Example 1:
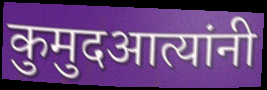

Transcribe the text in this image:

कुमुदआत्यांनी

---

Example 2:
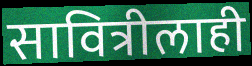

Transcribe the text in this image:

सावित्रीलाही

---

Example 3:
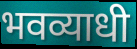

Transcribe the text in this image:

भवव्याधी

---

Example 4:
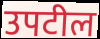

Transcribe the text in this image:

उपटील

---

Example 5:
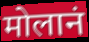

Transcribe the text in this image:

मोलानं